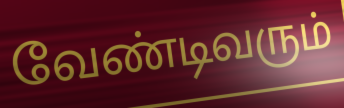
வேண்டிவரும்